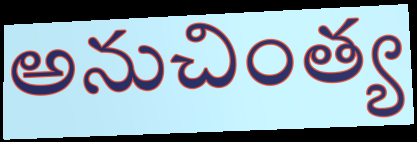
అనుచింత్య